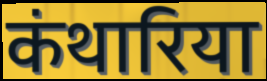
कंथारिया